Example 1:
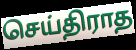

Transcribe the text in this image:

செய்திராத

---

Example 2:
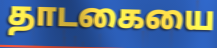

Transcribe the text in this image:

தாடகையை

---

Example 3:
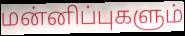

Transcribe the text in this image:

மன்னிப்புகளும்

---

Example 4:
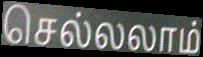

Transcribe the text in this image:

செல்லலாம்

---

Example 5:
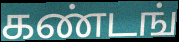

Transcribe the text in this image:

கண்டங்